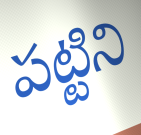
పట్టిని